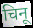
चिनू